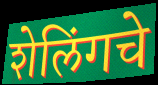
शेलिंगचे